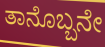
ತಾನೊಬ್ಬನೇ